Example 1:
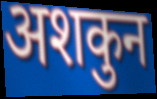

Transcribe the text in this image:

अशकुन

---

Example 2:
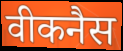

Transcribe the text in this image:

वीकनैस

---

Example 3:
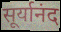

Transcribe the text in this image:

सूर्यानंद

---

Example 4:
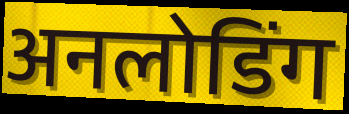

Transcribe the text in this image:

अनलोडिंग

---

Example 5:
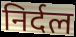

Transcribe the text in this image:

निर्दल